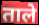
ताले